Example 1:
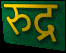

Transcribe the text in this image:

रुद्र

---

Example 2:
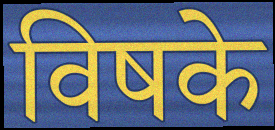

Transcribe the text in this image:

विषके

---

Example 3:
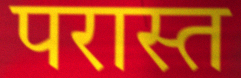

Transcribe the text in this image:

परास्त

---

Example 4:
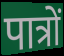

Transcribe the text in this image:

पात्रों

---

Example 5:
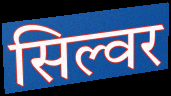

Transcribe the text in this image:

सिल्‍वर